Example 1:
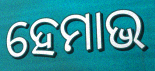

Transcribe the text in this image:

ହେମାଭ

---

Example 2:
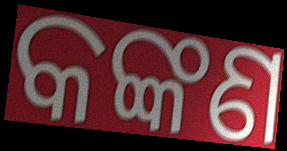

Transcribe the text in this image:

କଙ୍କଣ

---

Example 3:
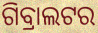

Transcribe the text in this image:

ଗିବ୍ରାଲଟର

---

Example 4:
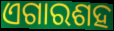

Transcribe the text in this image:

ଏଗାରଶହ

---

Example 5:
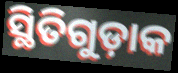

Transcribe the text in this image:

ସ୍ଥିତିଗୁଡ଼ାକ